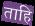
ताहि